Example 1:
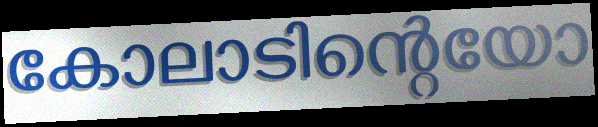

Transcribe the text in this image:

കോലാടിന്റെയോ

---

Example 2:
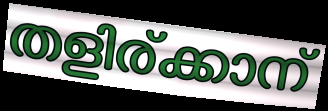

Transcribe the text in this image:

തളിര്ക്കാന്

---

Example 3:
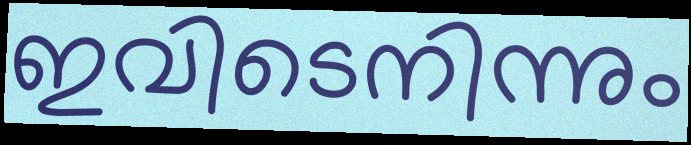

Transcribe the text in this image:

ഇവിടെനിന്നും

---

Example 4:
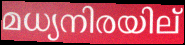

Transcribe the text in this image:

മധ്യനിരയില്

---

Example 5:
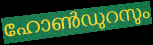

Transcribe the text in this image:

ഹോൺഡുറസും